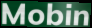
Mobin